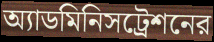
অ্যাডমিনিসট্রেশনের